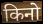
किनो